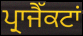
ਪ੍ਰਾਜੈੱਕਟਾਂ